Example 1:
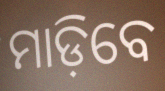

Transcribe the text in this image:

ମାଡ଼ିବେ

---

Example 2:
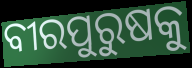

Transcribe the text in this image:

ବୀରପୁରୁଷକୁ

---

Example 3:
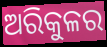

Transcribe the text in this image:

ଅରିକୁଳର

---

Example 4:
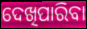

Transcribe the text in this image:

ଦେଖିପାରିବା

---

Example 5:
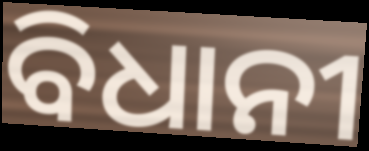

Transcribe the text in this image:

ବିଧାନୀ